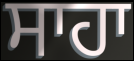
ਸਾਹਾ